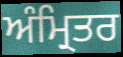
ਅੰਮ੍ਰਿਤਰ